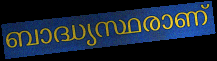
ബാദ്ധ്യസ്ഥരാണ്